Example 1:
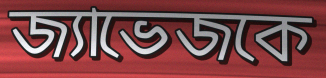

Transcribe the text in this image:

জ্যাভেজকে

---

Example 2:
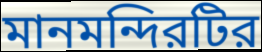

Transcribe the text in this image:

মানমন্দিরটির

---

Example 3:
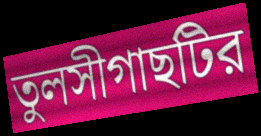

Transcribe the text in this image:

তুলসীগাছটির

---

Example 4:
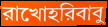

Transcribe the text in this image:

রাখোহরিবাবু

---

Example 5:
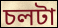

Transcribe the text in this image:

চলটা